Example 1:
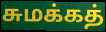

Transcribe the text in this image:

சுமக்கத்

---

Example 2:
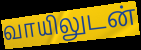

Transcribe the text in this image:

வாயிலுடன்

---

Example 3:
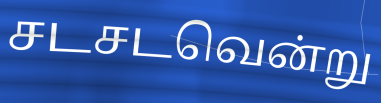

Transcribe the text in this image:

சடசடவென்று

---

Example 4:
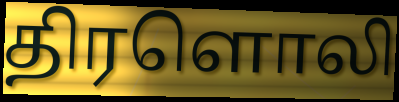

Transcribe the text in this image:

திரளொலி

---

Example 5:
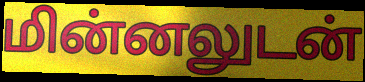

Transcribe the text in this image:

மின்னலுடன்